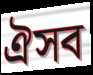
ঐসব